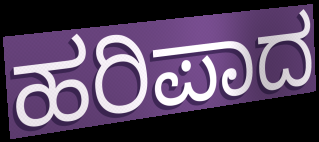
ಹರಿಪಾದ